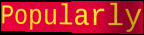
Popularly